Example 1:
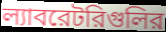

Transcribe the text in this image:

ল্যাবরেটরিগুলির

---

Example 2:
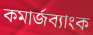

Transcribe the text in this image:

কমার্জব্যাংক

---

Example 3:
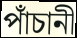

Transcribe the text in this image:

পাঁচানী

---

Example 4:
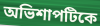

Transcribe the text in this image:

অভিশাপটিকে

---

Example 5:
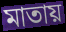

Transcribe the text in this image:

মাতায়